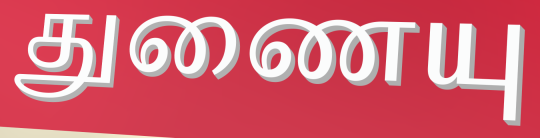
துணையு